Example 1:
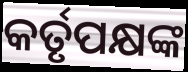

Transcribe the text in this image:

କର୍ତୃପକ୍ଷଙ୍କ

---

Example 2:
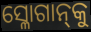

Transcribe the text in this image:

ସ୍ଳୋଗାନ୍‌କୁ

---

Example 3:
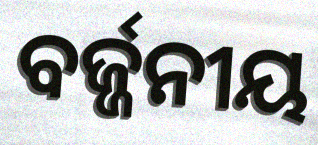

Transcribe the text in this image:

ବର୍ଜ୍ଜନୀୟ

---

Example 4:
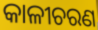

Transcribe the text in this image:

କାଳୀଚରଣ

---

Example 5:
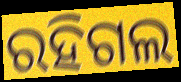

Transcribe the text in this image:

ରହିଗଲ